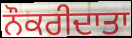
ਨੌਕਰੀਦਾਤਾ